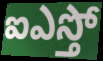
ఐఎస్తో